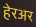
हेरअर